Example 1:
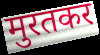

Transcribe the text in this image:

मुरतकर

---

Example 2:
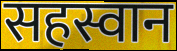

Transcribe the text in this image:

सहस्वान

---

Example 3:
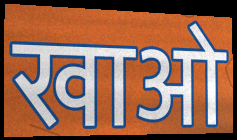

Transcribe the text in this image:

खाओ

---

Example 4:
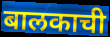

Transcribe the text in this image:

बालकाची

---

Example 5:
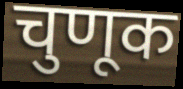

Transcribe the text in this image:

चुणूक